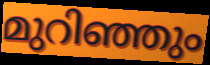
മുറിഞ്ഞും